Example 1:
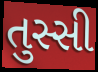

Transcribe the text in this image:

તુસ્સી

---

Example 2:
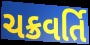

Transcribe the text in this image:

ચક્રવર્તિ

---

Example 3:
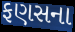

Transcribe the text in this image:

ફણસના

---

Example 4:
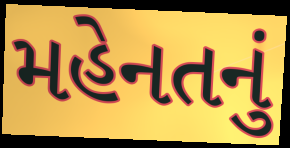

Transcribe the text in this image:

મહેનતનું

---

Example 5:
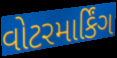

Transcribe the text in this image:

વોટરમાર્કિંગ